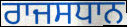
ਰਾਜਸਧਾਨ